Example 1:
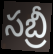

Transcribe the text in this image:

సబ్రీ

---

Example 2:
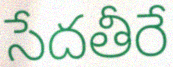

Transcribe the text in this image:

సేదతీరే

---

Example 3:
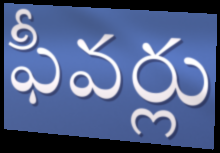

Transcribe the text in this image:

ఫీవర్లు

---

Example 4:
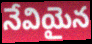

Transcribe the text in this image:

నేవియైన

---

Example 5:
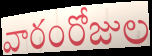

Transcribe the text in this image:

వారంరోజుల